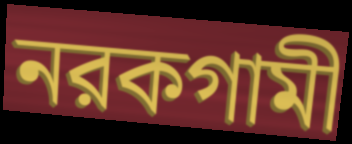
নরকগামী